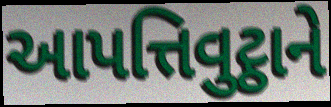
આપત્તિવુટ્ઠાને